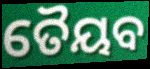
ତୈୟବ